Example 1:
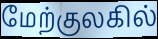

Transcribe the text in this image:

மேற்குலகில்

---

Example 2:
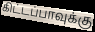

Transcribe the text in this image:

கிட்டப்பாவுக்கு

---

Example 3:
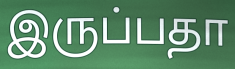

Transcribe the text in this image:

இருப்பதா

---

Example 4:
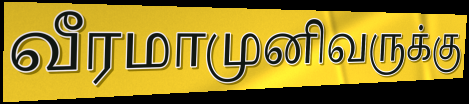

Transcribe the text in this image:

வீரமாமுனிவருக்கு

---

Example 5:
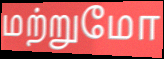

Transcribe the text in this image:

மற்றுமோ